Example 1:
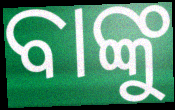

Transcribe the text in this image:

ବାଙ୍କୁ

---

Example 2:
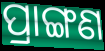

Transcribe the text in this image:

ପ୍ରାଙ୍ଗଣ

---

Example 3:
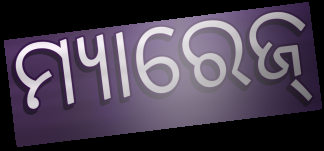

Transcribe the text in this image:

ମ୍ୟାରେଜ୍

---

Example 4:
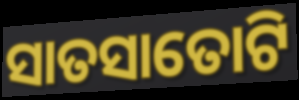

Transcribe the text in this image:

ସାତସାତୋଟି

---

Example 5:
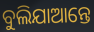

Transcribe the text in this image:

ବୁଲିଯାଆନ୍ତେ